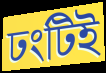
ঢংটিই